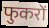
फुकरों